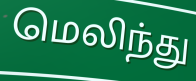
மெலிந்து